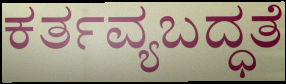
ಕರ್ತವ್ಯಬದ್ಧತೆ